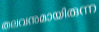
തലവനുമായിരുന്ന